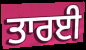
ਤਾਰਈ